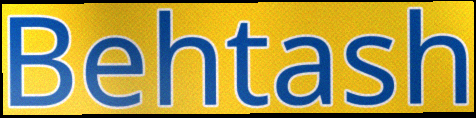
Behtash